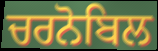
ਚਰਨੋਬਿਲ